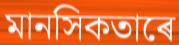
মানসিকতাৰে